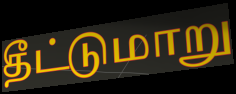
தீட்டுமாறு